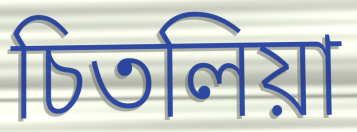
চিতলিয়া